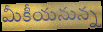
మీకీయనున్న